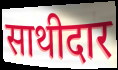
साथीदार